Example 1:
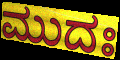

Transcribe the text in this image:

ಮುದಃ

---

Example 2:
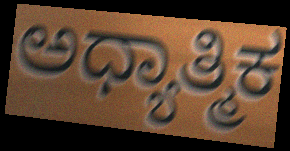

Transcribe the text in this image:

ಅಧ್ಯಾತ್ಮಿಕ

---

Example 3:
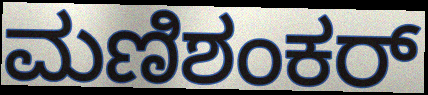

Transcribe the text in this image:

ಮಣಿಶಂಕರ್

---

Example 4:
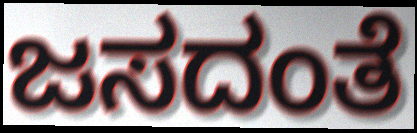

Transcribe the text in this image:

ಜಸದಂತೆ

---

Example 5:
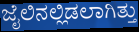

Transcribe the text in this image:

ಜೈಲಿನಲ್ಲಿಡಲಾಗಿತ್ತು